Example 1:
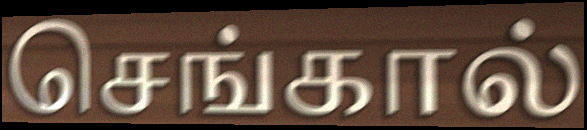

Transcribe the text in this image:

செங்கால்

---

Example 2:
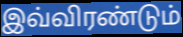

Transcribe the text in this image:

இவ்விரண்டும்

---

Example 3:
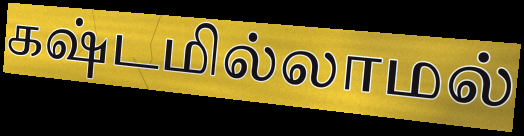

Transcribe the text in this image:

கஷ்டமில்லாமல்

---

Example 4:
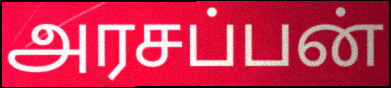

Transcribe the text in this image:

அரசப்பன்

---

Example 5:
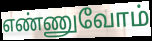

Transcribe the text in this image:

எண்ணுவோம்